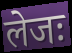
लेजः